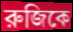
রুজিকে